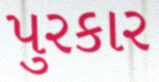
પુરકાર